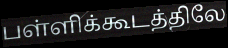
பள்ளிக்கூடத்திலே